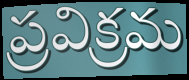
ప్రవిక్రమ